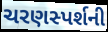
ચરણસ્પર્શની